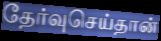
தேர்வுசெய்தான்